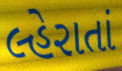
લ્હેરાતાં